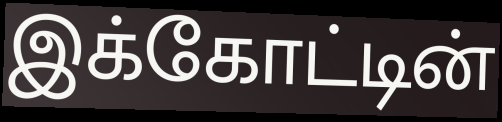
இக்கோட்டின்